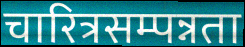
चारित्रसम्पन्नता